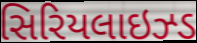
સિરિયલાઇઝ્ડ